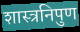
शास्त्रनिपुण